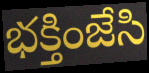
భక్తింజేసి